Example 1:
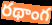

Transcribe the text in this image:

రథాంగ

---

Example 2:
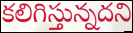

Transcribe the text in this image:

కలిగిస్తున్నదని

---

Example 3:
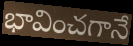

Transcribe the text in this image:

భావించగానే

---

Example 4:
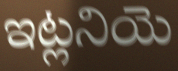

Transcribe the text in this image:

ఇట్లనియె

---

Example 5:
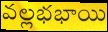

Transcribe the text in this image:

వల్లభభాయి